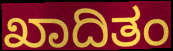
ಖಾದಿತಂ